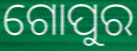
ଗୋପୁର